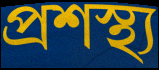
প্ৰশস্থ্য